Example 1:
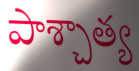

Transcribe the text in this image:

పాశ్చాత్య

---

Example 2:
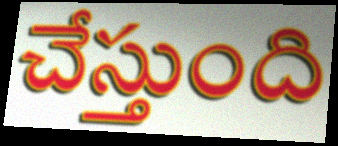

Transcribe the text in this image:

చేస్తుంది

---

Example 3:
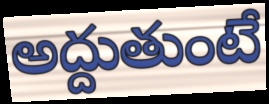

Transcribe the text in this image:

అద్దుతుంటే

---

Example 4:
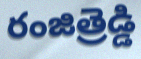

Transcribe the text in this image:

రంజిత్రెడ్డి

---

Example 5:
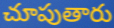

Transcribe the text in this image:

చూపుతారు